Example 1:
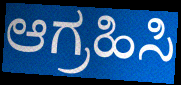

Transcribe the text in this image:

ಆಗ್ರಹಿಸಿ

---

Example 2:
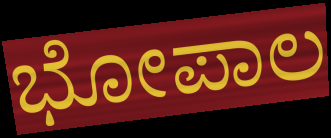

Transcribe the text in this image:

ಭೋಪಾಲ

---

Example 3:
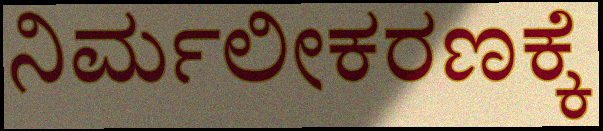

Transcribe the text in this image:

ನಿರ್ಮಲೀಕರಣಕ್ಕೆ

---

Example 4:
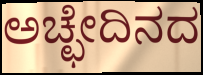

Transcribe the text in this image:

ಅಚ್ಛೇದಿನದ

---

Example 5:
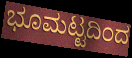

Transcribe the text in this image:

ಭೂಮಟ್ಟದಿಂದ